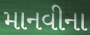
માનવીના